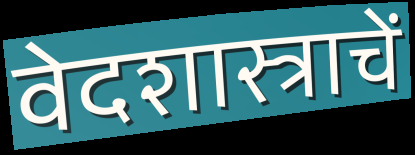
वेदशास्त्राचें